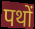
पथों